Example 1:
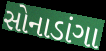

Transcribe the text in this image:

સોનાડાંગા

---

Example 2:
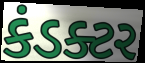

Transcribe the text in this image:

કંડક્ટર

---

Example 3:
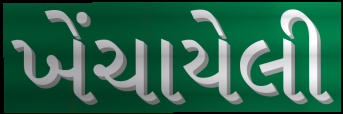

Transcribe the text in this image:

ખેંચાયેલી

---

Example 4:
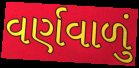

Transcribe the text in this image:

વર્ણવાળું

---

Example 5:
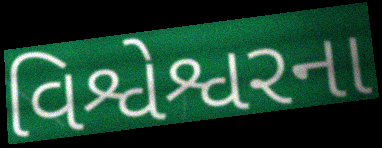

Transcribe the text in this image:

વિશ્વેશ્વરના